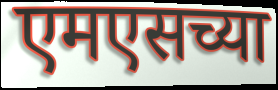
एमएसच्या